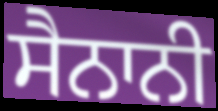
ਸੈਨਾਨੀ